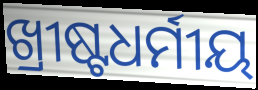
ଖ୍ରୀଷ୍ଟଧର୍ମୀୟ